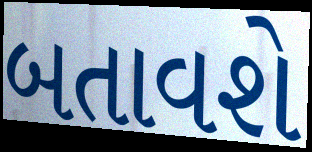
બતાવશે